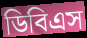
ডিবিএস